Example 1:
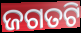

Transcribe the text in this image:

ଜଗତଟି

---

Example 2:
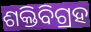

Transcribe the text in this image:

ଶକ୍ତିବିଗ୍ରହ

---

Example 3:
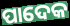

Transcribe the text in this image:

ପାଦେକ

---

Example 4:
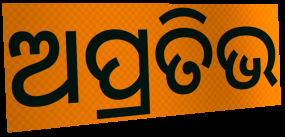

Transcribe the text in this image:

ଅପ୍ରତିଭ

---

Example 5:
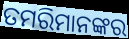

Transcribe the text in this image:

ତମରିମାନଙ୍କର